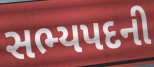
સભ્યપદની